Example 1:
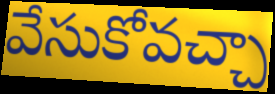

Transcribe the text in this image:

వేసుకోవచ్చా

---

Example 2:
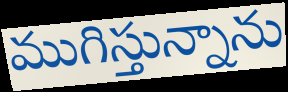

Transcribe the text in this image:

ముగిస్తున్నాను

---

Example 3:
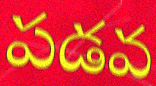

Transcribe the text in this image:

పడవ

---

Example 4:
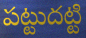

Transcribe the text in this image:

పట్టుదట్టి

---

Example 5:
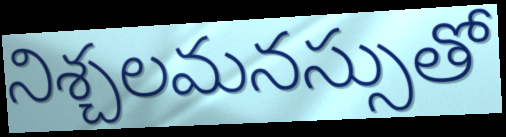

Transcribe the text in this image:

నిశ్చలమనస్సుతో